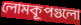
লোমকূপগুলো